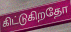
கிட்டுகிறதோ